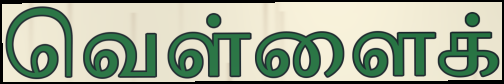
வெள்ளைக்